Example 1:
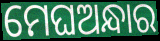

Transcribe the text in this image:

ମେଘଅନ୍ଧାର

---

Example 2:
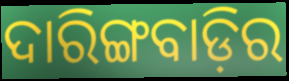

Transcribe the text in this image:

ଦାରିଙ୍ଗବାଡ଼ିର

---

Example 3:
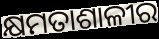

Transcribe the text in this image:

କ୍ଷମତାଶାଳୀର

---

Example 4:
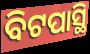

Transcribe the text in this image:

ବିଟପାସ୍ଥି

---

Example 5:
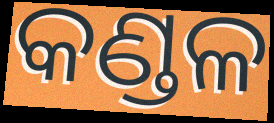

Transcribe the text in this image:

କଣ୍ଡଳ